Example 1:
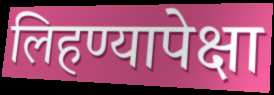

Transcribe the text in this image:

लिहण्यापेक्षा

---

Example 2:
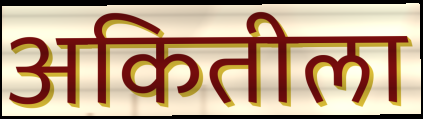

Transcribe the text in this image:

अकितीला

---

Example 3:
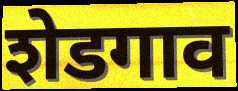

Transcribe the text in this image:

शेडगाव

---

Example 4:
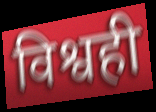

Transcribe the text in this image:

विश्वही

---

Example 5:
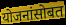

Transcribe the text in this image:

योजनांसोबत